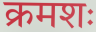
क्रमशः